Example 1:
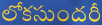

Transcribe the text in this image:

లోకసుందరీ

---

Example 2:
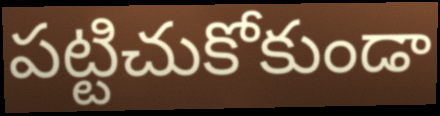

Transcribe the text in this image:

పట్టిచుకోకుండా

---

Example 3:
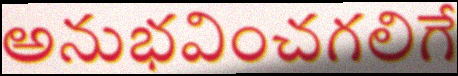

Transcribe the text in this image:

అనుభవించగలిగే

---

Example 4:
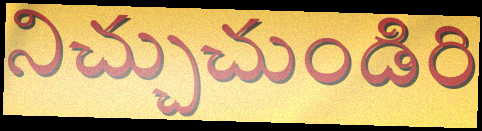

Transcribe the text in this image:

నిచ్చుచుండిరి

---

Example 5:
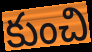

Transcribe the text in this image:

కుంచి